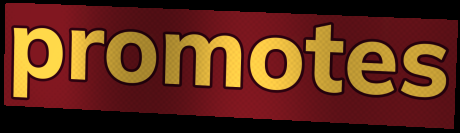
promotes